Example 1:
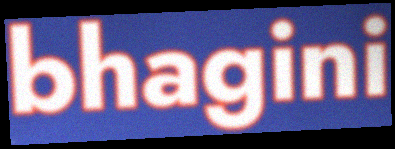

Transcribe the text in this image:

bhagini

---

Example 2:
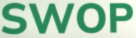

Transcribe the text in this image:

SWOP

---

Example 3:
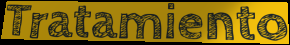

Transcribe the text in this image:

Tratamiento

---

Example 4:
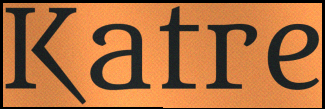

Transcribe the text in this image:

Katre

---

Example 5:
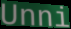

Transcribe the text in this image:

Unni